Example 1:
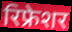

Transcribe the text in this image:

रिफ्रेशर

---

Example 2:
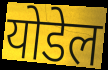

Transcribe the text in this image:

योडेल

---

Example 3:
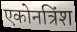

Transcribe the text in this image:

एकोनत्रिंश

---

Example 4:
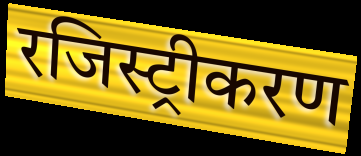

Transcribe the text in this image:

रजिस्ट्रीकरण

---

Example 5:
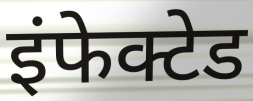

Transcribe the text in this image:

इंफेक्टेड